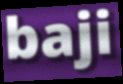
baji